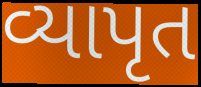
વ્યાપૃત